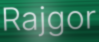
Rajgor